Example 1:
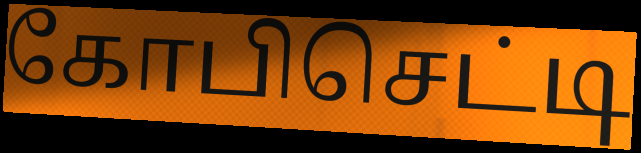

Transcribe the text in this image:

கோபிசெட்டி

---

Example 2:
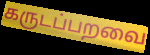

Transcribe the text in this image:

கருடப்பறவை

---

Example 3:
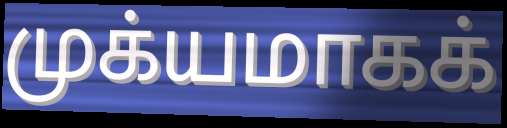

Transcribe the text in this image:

முக்யமாகக்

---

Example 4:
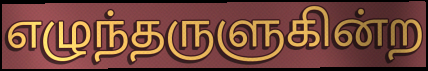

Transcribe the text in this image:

எழுந்தருளுகின்ற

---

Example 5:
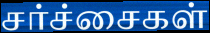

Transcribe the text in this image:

சர்ச்சைகள்